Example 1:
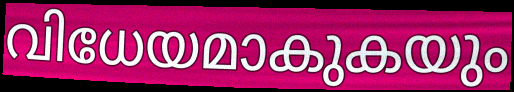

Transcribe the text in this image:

വിധേയമാകുകയും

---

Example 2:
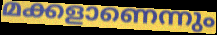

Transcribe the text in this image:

മക്കളാണെന്നും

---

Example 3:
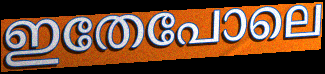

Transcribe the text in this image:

ഇതേപോലെ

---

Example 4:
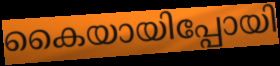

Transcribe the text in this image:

കൈയായിപ്പോയി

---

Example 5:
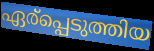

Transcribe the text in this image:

ഏര്പ്പെടുത്തിയ